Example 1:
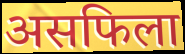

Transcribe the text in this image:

असफिला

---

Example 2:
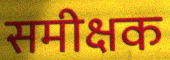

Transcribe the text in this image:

समीक्षक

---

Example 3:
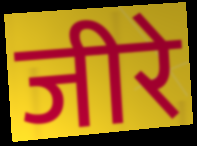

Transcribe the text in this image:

जीरे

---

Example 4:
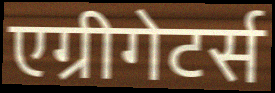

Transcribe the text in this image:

एग्रीगेटर्स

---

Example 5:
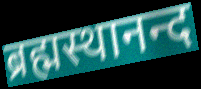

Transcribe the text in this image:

ब्रह्मस्थानन्द